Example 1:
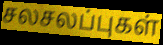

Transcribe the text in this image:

சலசலப்புகள்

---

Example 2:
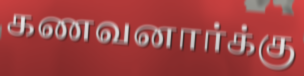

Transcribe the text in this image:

கணவனார்க்கு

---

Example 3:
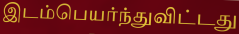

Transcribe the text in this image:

இடம்பெயர்ந்துவிட்டது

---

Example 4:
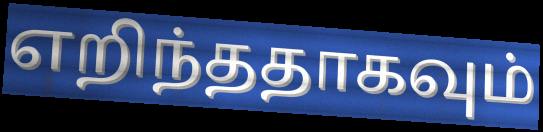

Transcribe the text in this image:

எறிந்ததாகவும்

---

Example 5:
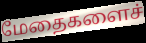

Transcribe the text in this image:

மேதைகளைச்